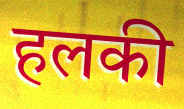
हलकी